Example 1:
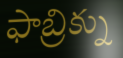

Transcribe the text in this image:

ఫాబ్రిక్ను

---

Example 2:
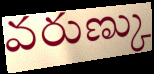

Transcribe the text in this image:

వరుణ్కు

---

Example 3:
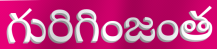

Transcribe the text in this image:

గురిగింజంత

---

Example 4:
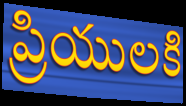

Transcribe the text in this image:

ప్రియులకి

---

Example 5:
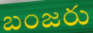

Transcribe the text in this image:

బంజరు